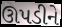
ઊપડીને